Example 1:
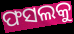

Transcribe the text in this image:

ଫସଲକୁ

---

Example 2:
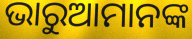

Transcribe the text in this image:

ଭାରୁଆମାନଙ୍କ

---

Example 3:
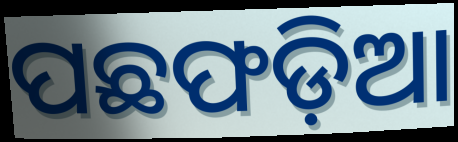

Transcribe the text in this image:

ପଛଫଡ଼ିଆ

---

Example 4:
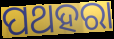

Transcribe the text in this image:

ପଥହରା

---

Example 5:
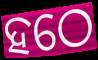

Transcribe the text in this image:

ହଠେ